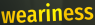
weariness